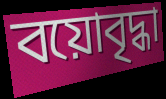
বয়োবৃদ্ধা